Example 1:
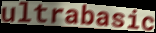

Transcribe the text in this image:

ultrabasic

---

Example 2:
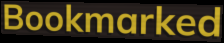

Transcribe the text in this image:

Bookmarked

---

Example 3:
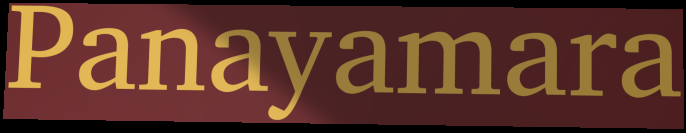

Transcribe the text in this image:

Panayamara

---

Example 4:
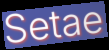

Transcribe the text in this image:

Setae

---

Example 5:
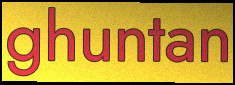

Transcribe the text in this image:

ghuntan